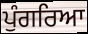
ਪੁੰਗਰਿਆ